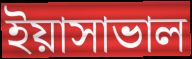
ইয়াসাভাল